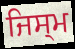
ਜਿਸ੍ਮ